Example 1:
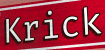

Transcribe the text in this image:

Krick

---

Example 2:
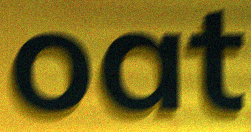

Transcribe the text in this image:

oat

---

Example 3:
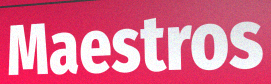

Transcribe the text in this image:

Maestros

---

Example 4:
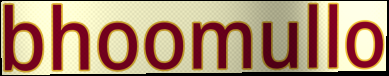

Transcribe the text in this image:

bhoomullo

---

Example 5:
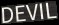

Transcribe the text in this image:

DEVIL